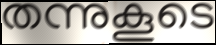
തന്നുകൂടെ